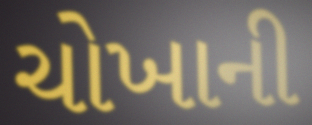
ચોખાની